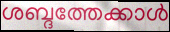
ശബ്ദത്തേക്കാൾ